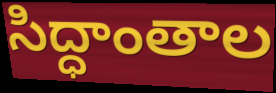
సిద్ధాంతాల